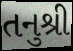
તનુશ્રી